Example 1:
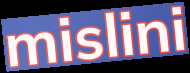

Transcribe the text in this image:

mislini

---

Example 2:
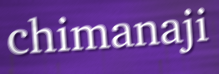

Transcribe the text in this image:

chimanaji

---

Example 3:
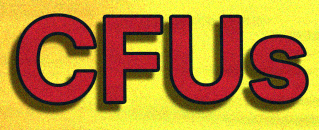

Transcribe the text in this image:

CFUs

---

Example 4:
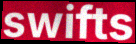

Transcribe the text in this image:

swifts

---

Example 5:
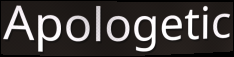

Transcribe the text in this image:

Apologetic